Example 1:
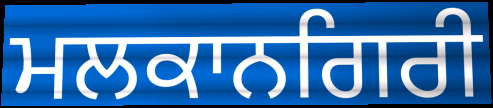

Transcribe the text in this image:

ਮਲਕਾਨਗਿਰੀ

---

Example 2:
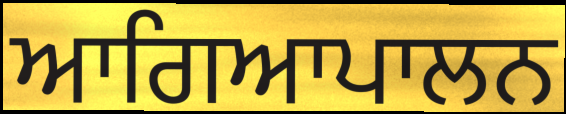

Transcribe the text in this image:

ਆਗਿਆਪਾਲਨ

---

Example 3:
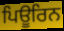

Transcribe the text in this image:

ਪਿਊਰਿਨ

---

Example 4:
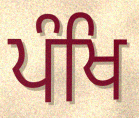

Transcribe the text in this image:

ਪੰਖਿ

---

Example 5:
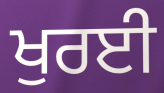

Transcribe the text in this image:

ਖੁਰਈ